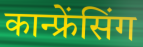
कान्फ्रेंसिंग